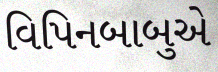
વિપિનબાબુએ